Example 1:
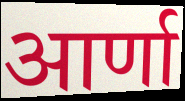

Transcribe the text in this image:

आर्णा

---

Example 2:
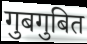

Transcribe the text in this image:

गुबगुबित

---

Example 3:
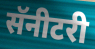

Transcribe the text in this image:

सॅनीटरी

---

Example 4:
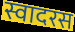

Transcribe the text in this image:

स्वादरस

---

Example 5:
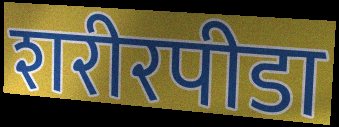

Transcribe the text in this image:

शरीरपीडा